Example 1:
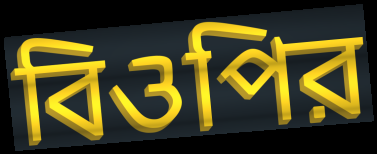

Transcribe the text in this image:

বিওপির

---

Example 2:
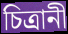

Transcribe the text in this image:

চিত্রানী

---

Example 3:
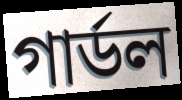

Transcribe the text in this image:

গার্ডল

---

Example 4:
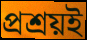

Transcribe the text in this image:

প্রশ্রয়ই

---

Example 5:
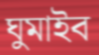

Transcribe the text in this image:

ঘুমাইব